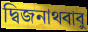
দ্বিজনাথবাবু